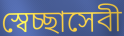
স্বেচ্ছাসেবী